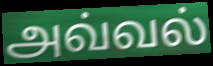
அவ்வல்